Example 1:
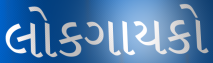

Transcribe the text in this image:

લોકગાયકો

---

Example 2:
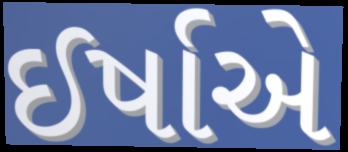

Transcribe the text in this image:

ઈર્ષાએ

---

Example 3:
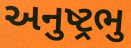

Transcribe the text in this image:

અનુષ્ટ્રભુ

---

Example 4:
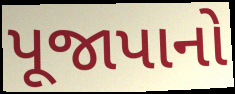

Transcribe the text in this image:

પૂજાપાનો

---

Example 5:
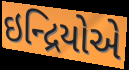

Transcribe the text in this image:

ઇન્દ્રિયોએ